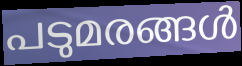
പടുമരങ്ങൾ